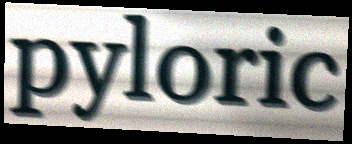
pyloric